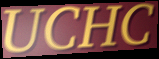
UCHC